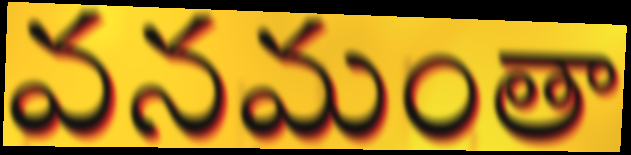
వనమంతా